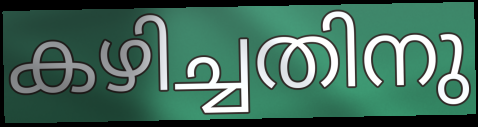
കഴിച്ചതിനു